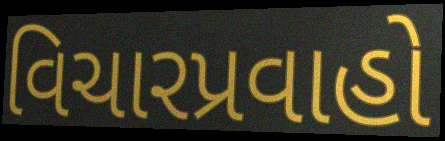
વિચારપ્રવાહો